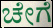
ಚೇಗೆ